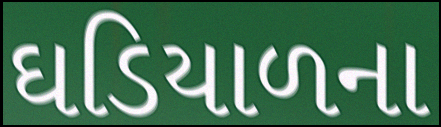
ઘડિયાળના